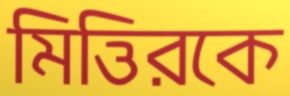
মিত্তিরকে